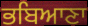
ਭਬਿਆਣਾ